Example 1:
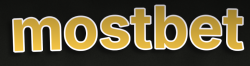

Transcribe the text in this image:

mostbet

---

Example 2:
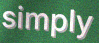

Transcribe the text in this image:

simply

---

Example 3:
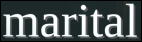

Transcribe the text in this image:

marital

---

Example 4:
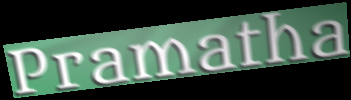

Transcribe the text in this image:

Pramatha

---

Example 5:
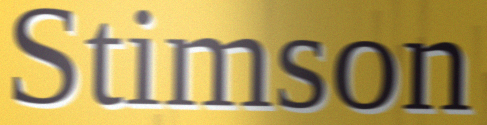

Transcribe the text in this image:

Stimson